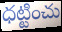
ధట్టించు